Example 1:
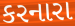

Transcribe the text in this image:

કરનારા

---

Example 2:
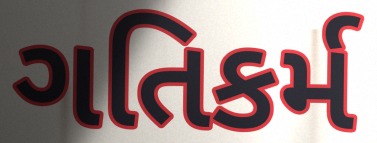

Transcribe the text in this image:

ગતિકર્મ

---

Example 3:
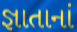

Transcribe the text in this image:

જ્ઞાતાનાં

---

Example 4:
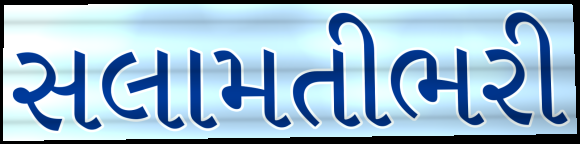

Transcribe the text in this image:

સલામતીભરી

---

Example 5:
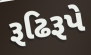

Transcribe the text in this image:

રૂઢિરૂપે